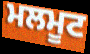
ਮਲਮੂਟ